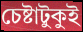
চেষ্টাটুকুই